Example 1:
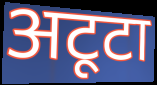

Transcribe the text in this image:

अटूटा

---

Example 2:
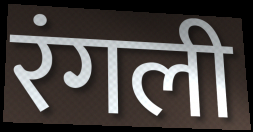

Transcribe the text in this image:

रंगली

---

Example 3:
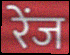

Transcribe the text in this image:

रेंज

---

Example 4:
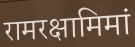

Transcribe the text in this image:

रामरक्षामिमां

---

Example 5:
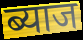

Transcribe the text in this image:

ब्याज